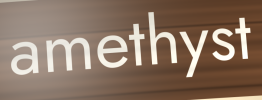
amethyst